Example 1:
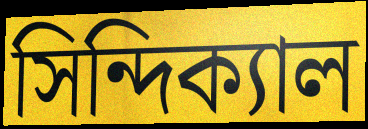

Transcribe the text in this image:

সিন্দিক্যাল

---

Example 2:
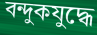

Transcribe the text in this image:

বন্দুকযুদ্ধে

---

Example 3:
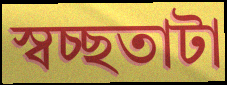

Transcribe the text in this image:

স্বচ্ছতাটা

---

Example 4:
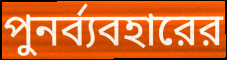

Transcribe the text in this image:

পুনর্ব্যবহারের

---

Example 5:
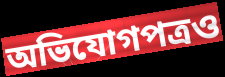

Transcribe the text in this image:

অভিযোগপত্রও